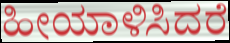
ಹೀಯಾಳಿಸಿದರೆ